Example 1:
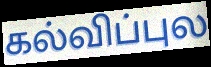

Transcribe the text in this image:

கல்விப்புல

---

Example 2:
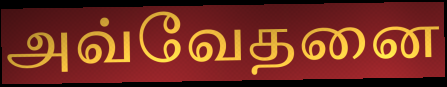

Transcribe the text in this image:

அவ்வேதனை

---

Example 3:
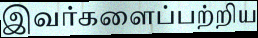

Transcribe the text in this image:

இவர்களைப்பற்றிய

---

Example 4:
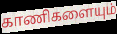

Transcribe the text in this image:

காணிகளையும்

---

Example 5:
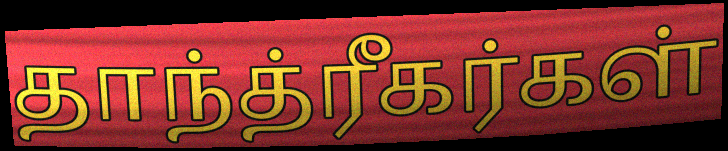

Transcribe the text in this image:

தாந்த்ரீகர்கள்